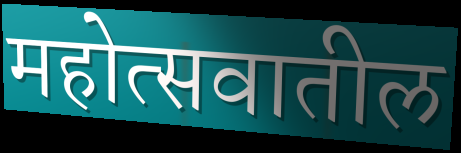
महोत्सवातील